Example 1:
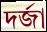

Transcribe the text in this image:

দৰ্জা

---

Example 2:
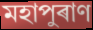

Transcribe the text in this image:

মহাপুৰাণ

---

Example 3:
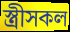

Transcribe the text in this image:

স্ত্ৰীসকল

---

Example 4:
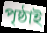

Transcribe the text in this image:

পৃষ্ঠাই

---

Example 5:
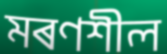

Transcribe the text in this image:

মৰণশীল